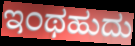
ಇಂಥಹುದು